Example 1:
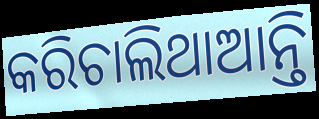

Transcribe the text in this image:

କରିଚାଲିଥାଆନ୍ତି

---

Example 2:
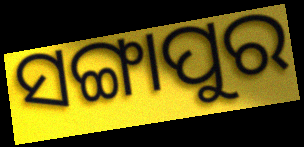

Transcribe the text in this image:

ସଙ୍ଗାପୁର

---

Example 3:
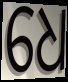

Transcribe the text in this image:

ଧେ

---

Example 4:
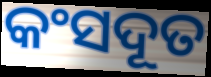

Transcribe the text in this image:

କଂସଦୂତ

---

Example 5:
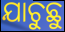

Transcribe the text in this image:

ଯାଚୁଛୁ